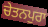
ਚੇਤਨਪੁਰਾ